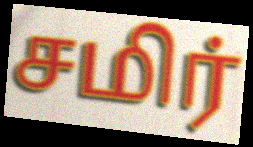
சமிர்